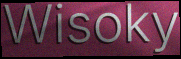
Wisoky